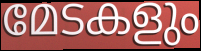
മേടകളും